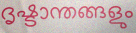
ദൃഷ്ടാന്തങ്ങളും